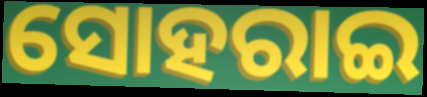
ସୋହରାଇ